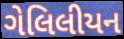
ગેલિલીયન